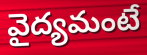
వైద్యమంటే